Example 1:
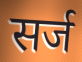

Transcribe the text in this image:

सर्ज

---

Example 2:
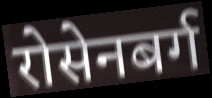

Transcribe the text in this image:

रोसेनबर्ग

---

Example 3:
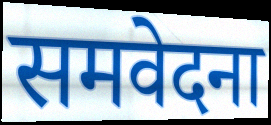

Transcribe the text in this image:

समवेदना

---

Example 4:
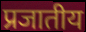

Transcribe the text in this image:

प्रजातीय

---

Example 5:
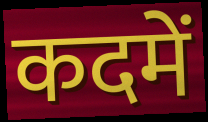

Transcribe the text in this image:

कदमें